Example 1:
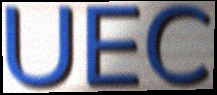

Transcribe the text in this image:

UEC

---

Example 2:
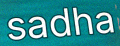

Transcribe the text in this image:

sadha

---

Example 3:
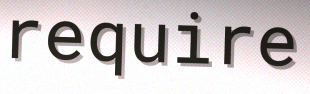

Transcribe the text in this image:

require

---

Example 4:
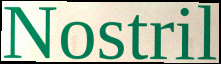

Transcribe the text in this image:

Nostril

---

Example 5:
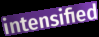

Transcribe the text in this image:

intensified